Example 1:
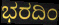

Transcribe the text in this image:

ಭರದಿಂ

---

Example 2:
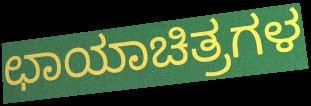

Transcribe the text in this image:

ಛಾಯಾಚಿತ್ರಗಳ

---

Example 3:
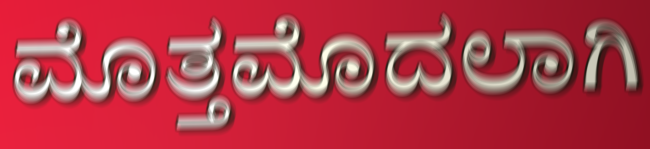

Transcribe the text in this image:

ಮೊತ್ತಮೊದಲಾಗಿ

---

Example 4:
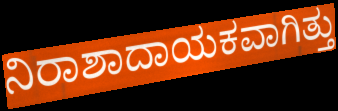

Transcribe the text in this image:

ನಿರಾಶಾದಾಯಕವಾಗಿತ್ತು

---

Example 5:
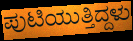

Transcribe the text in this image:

ಪುಟಿಯುತ್ತಿದ್ದಳು